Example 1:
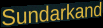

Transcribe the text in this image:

Sundarkand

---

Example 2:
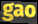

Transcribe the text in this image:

gao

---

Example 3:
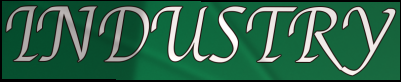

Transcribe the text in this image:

INDUSTRY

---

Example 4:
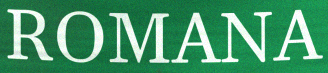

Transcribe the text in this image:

ROMANA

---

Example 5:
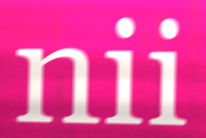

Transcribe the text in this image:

nii